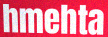
hmehta